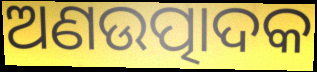
ଅଣଉତ୍ପାଦକ